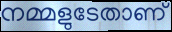
നമ്മളുടേതാണ്